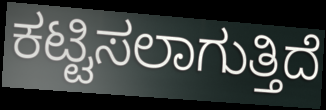
ಕಟ್ಟಿಸಲಾಗುತ್ತಿದೆ